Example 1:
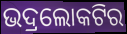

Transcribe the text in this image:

ଭଦ୍ରଲୋକଟିର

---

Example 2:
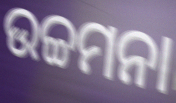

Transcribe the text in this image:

ଉଚ୍ଚମନା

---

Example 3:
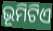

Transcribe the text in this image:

ଭୂମିଟିଏ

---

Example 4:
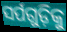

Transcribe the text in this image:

ସର୍ପଗୁଡ଼ିକୁ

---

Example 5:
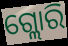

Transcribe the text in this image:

ଗ୍ଲୋରି